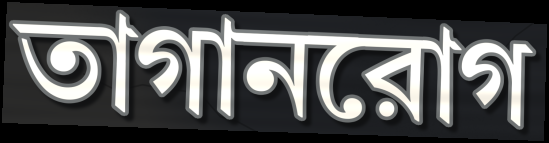
তাগানরোগ